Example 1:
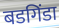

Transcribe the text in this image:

बडगिंडा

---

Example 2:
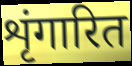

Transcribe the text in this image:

शृंगारित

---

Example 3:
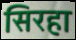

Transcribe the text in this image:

सिरहा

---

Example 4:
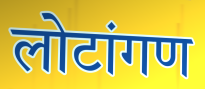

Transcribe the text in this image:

लोटांगण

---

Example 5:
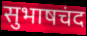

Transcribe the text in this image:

सुभाषचंद